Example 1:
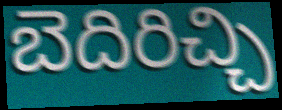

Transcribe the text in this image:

బెదిరిచ్చి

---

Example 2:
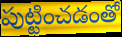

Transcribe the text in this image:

పుట్టించడంతో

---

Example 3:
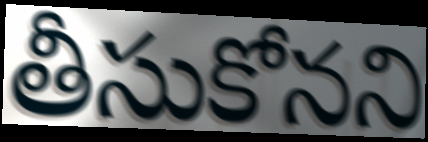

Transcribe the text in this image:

తీసుకోనని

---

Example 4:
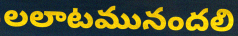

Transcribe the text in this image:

లలాటమునందలి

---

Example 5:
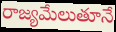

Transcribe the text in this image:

రాజ్యమేలుతూనే